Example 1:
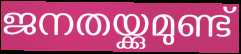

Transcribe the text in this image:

ജനതയ്ക്കുമുണ്ട്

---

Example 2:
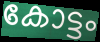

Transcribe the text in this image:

കോട്ടം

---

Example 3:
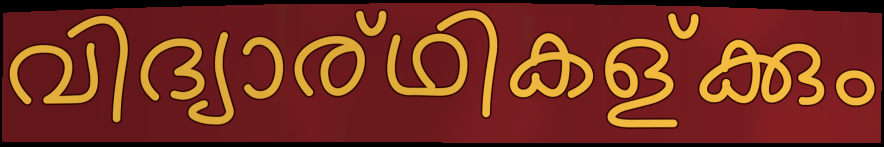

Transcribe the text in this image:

വിദ്യാര്ഥികള്ക്കും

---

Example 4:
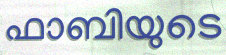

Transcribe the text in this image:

ഫാബിയുടെ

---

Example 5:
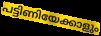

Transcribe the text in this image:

പട്ടിണിയേക്കാളും